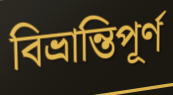
বিভ্রান্তিপূর্ণ